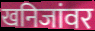
खनिजांवर